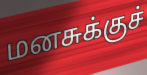
மனசுக்குச்